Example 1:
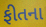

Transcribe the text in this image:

ફીતના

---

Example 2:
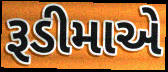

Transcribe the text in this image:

રૂડીમાએ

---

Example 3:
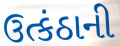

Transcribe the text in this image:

ઉત્કંઠાની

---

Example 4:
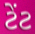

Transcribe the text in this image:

ટેંટ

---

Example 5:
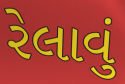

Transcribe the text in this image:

રેલાવું